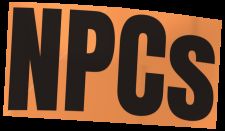
NPCs